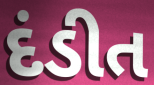
દંડીત